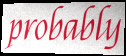
probably